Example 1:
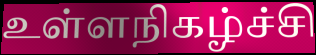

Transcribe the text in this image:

உள்ளநிகழ்ச்சி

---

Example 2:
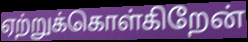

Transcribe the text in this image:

ஏற்றுக்கொள்கிறேன்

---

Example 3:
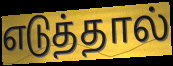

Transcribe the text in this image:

எடுத்தால்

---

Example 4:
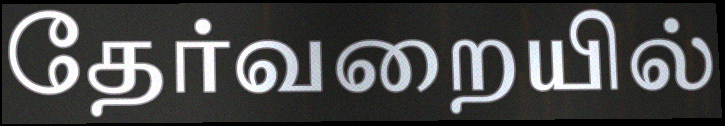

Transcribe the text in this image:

தேர்வறையில்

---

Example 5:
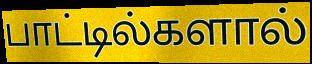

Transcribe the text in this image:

பாட்டில்களால்